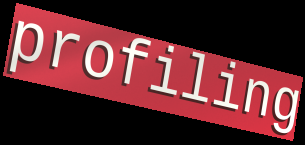
profiling